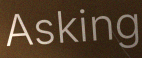
Asking